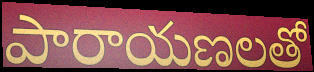
పారాయణలతో